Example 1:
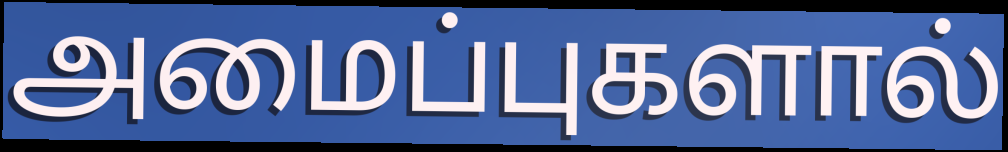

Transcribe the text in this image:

அமைப்புகளால்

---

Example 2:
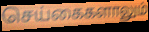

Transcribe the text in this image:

செய்கைகளாலும்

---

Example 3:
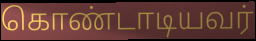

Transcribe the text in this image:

கொண்டாடியவர்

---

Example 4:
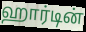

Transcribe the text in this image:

ஹார்டின்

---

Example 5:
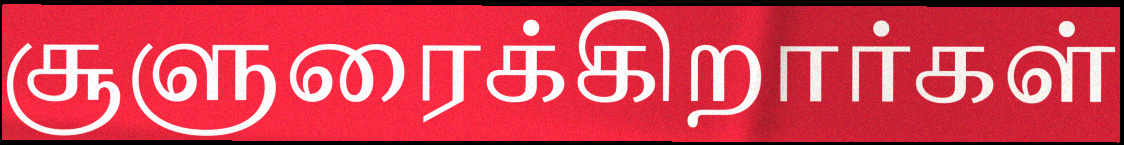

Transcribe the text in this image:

சூளுரைக்கிறார்கள்